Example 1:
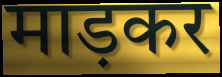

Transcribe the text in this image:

माड़कर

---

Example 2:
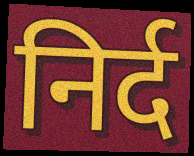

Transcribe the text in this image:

निर्द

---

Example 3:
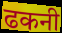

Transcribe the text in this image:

ढकनी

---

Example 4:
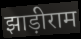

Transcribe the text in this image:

झाड़ीराम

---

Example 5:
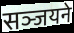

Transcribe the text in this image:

सञ्जयने